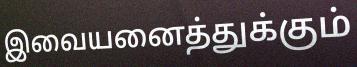
இவையனைத்துக்கும்